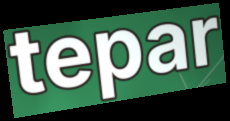
tepar